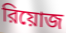
রিয়োজ